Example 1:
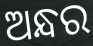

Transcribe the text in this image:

ଅନ୍ଧର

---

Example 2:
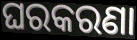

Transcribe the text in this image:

ଘରକରଣା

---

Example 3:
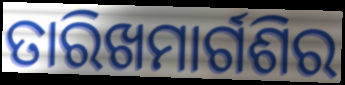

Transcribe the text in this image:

ତାରିଖମାର୍ଗଶିର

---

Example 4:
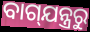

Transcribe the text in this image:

ବାଗ୍‌ଯନ୍ତ୍ରରୁ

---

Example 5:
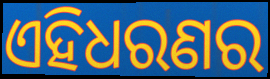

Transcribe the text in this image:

ଏହିଧରଣର